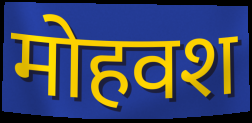
मोहवश